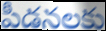
పీడనలకు